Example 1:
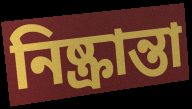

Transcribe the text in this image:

নিষ্ক্রান্তা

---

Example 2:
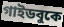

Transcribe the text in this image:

গাইডবুকে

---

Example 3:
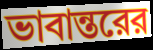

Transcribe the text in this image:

ভাবান্তরের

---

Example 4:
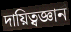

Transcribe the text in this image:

দায়িত্বজ্ঞান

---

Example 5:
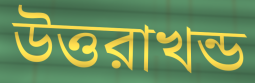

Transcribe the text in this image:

উত্তরাখন্ড